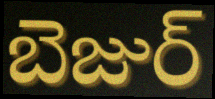
బెజుర్